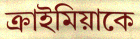
ক্রাইমিয়াকে